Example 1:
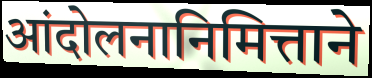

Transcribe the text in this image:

आंदोलनानिमित्ताने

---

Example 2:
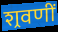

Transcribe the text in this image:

श्रवणीं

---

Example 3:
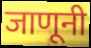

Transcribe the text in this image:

जाणूनी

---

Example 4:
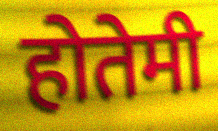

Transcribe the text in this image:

होतेमी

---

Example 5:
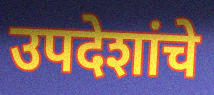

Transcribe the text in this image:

उपदेशांचे